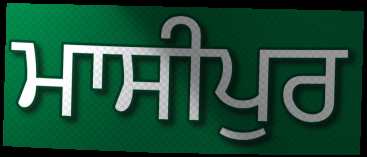
ਮਾਸੀਪੁਰ